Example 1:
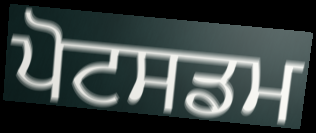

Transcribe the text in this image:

ਪੋਟਸਡਮ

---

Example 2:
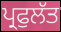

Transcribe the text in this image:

ਪ੍ਰਫੁਲੱਤ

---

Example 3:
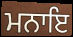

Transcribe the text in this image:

ਮਨਾਇ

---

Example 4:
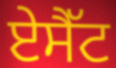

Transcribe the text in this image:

ਏਸੈੱਟ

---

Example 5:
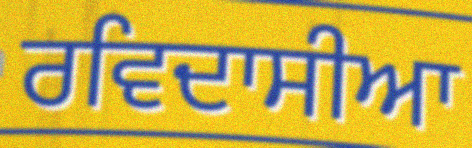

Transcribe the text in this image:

ਰਵਿਦਾਸੀਆ